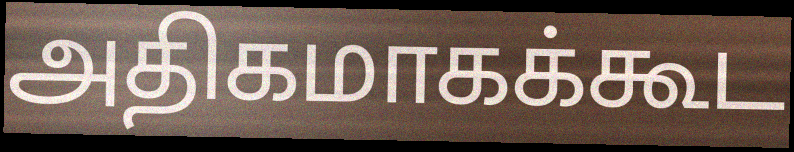
அதிகமாகக்கூட